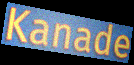
Kanade